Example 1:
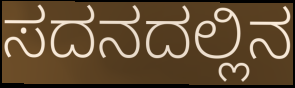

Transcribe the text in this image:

ಸದನದಲ್ಲಿನ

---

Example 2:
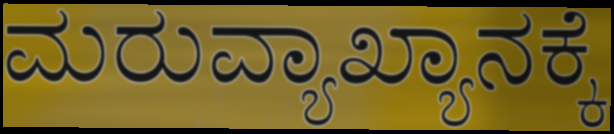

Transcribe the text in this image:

ಮರುವ್ಯಾಖ್ಯಾನಕ್ಕೆ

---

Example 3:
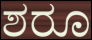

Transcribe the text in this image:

ಶರೂ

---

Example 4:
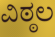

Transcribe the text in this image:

ವಿಠ್ಠಲ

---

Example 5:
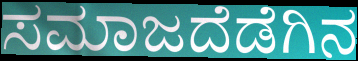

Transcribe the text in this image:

ಸಮಾಜದೆಡೆಗಿನ